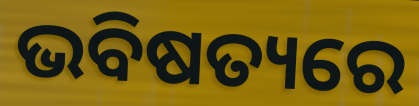
ଭବିଷତ୍ୟରେ